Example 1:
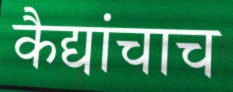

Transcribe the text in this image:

कैद्यांचाच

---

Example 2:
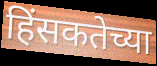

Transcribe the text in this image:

हिंसकतेच्या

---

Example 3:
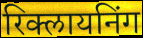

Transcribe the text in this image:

रिक्लायनिंग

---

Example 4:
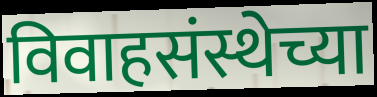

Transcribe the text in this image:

विवाहसंस्थेच्या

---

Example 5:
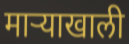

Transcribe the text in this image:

माऱ्याखाली